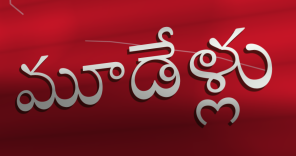
మూడేళ్లు